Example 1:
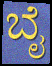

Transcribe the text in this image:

ಬೈ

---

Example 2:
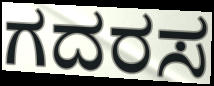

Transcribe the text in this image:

ಗದರಸ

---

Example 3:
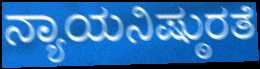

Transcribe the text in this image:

ನ್ಯಾಯನಿಷ್ಠುರತೆ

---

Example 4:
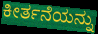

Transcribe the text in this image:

ಕೀರ್ತನೆಯನ್ನು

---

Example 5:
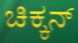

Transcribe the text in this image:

ಚಿಕ್ಕನ್